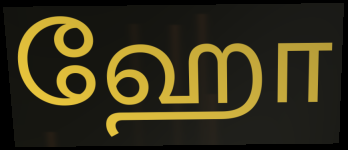
ஹோ